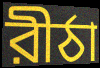
রীঠা